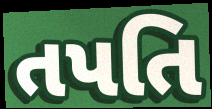
તપતિ